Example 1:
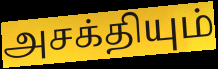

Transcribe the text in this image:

அசக்தியும்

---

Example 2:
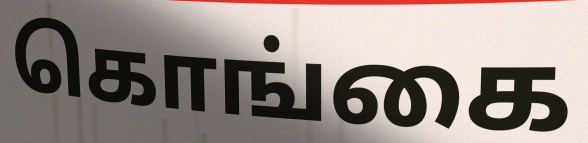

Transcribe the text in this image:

கொங்கை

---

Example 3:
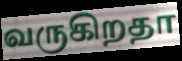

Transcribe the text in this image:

வருகிறதா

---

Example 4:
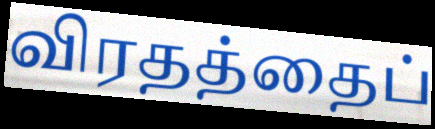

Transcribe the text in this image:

விரதத்தைப்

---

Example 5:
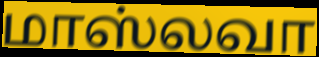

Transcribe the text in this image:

மாஸ்லவா